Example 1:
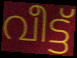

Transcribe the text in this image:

വീട്ട്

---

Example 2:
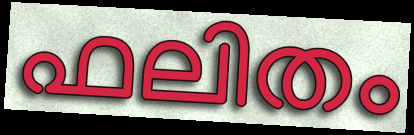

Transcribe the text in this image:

ഫലിതം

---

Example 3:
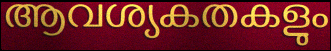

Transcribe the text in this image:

ആവശ്യകതകളും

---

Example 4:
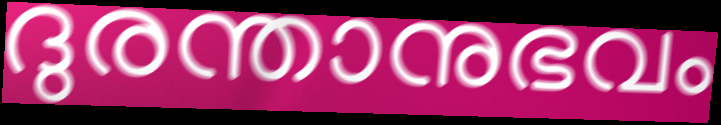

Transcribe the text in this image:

ദുരന്താനുഭവം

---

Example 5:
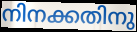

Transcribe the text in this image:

നിനക്കതിനു